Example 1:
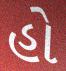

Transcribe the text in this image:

હો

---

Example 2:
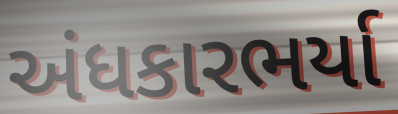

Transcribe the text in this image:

અંધકારભર્યા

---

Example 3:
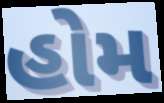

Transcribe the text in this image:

હોમ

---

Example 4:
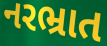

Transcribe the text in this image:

નરભ્રાત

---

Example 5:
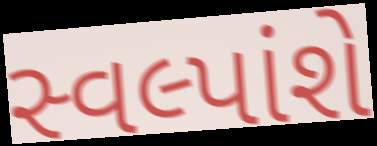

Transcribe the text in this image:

સ્વલ્પાંશે